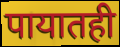
पायातही